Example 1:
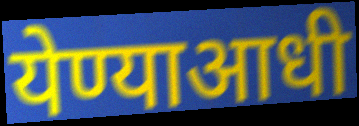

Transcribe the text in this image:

येण्याआधी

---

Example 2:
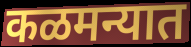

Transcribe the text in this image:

कळमन्यात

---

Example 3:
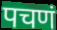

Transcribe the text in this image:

पचणं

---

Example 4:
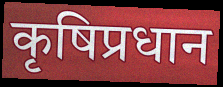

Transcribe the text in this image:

कृषिप्रधान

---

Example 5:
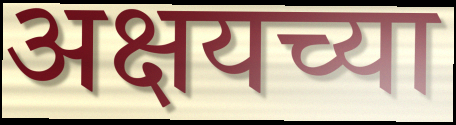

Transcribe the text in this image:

अक्षयच्या